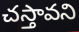
చస్తావని